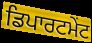
ਡਿਪਾਰਟਮੇਂਟ